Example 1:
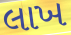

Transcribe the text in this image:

લાખ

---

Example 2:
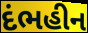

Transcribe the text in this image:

દંભહીન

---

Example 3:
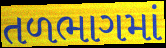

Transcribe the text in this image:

તળભાગમાં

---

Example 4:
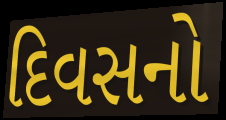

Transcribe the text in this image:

દિવસનો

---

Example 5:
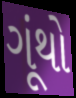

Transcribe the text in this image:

ગૂંથો